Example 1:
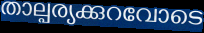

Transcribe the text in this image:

താല്പര്യക്കുറവോടെ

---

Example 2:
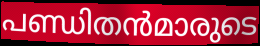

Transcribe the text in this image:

പണ്ഡിതൻമാരുടെ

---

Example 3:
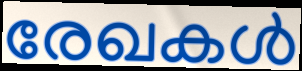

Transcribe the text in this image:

രേഖകൾ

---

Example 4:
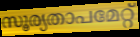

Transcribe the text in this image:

സൂര്യതാപമേറ്റ്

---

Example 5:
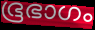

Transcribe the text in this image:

ഭൂഭാഗം